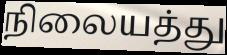
நிலையத்து